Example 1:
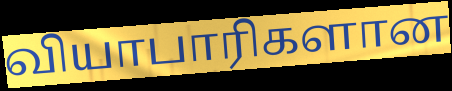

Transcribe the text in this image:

வியாபாரிகளான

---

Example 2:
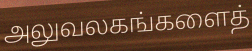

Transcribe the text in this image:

அலுவலகங்களைத்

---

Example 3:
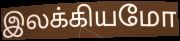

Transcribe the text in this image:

இலக்கியமோ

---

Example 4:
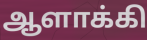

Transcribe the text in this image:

ஆளாக்கி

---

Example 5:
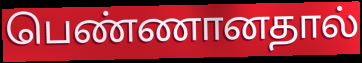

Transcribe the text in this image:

பெண்ணானதால்